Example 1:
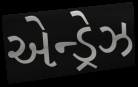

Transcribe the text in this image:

એન્ડ્રેઝ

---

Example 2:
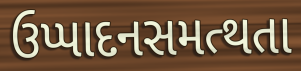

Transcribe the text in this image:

ઉપ્પાદનસમત્થતા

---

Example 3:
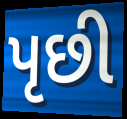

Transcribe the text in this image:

પૃછી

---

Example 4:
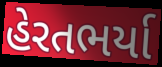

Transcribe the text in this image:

હેરતભર્યા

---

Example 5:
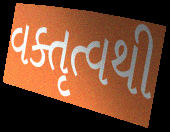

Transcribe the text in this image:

વક્તૃત્વથી